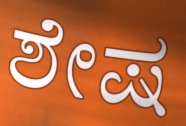
ಶೇಷ